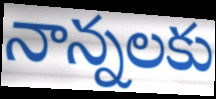
నాన్నలకు